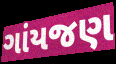
ગાંયજણ